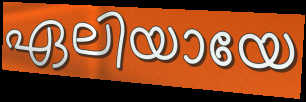
ഏലിയായേ